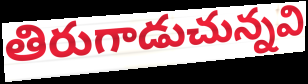
తిరుగాడుచున్నవి